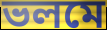
ভলমে